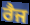
ਰੈਜ